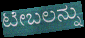
ಟೇಬಲನ್ನು